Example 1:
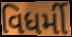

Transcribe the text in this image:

વિધર્મી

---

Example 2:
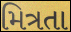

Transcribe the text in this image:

મિત્રતા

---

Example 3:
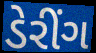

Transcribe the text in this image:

ડેરીંગ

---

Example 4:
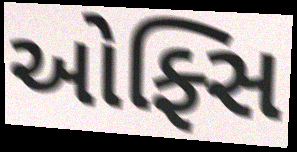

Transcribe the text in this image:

ઓફ્સિ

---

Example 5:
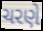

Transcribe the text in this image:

ચરણે